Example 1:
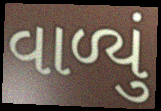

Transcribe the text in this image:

વાળ્યું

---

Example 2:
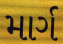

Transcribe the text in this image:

માર્ગ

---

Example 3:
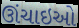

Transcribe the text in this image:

ઊંચાઇઓ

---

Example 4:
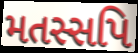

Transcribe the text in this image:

મતસ્સપિ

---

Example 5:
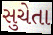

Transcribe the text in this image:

સુચેતા